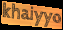
khaiyyo